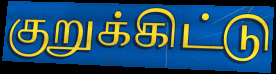
குறுக்கிட்டு